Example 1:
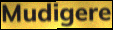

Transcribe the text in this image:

Mudigere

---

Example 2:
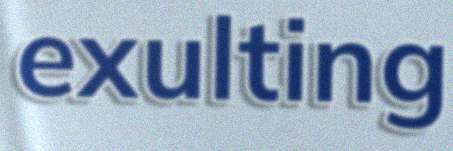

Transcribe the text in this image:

exulting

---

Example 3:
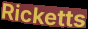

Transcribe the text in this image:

Ricketts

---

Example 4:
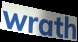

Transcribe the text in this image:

wrath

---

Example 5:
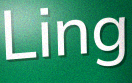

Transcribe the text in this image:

Ling